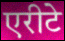
एरीटे